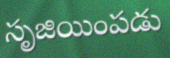
సృజియింపడు